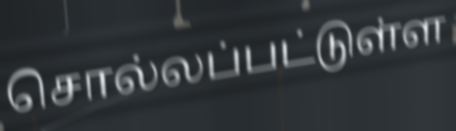
சொல்லப்பட்டுள்ள